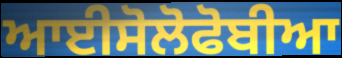
ਆਈਸੋਲੋਫੋਬੀਆ